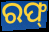
ରଫ୍